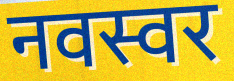
नवस्वर